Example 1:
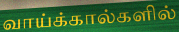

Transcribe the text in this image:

வாய்க்கால்களில்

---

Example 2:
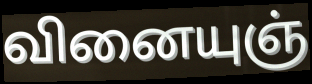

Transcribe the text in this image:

வினையுஞ்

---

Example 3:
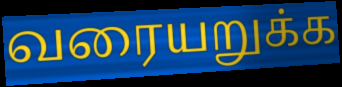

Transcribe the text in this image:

வரையறுக்க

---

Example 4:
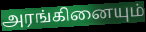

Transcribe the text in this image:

அரங்கினையும்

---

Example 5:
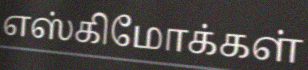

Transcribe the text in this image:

எஸ்கிமோக்கள்